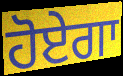
ਹੋਏਗਾ